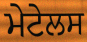
ਮੇਟੇਲਸ